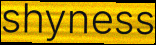
shyness